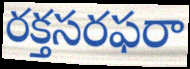
రక్తసరఫరా